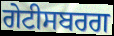
ਗੇਟੀਸਬਰਗ